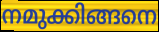
നമുക്കിങ്ങനെ